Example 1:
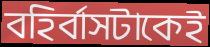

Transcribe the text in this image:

বহির্বাসটাকেই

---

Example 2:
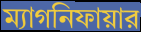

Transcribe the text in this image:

ম্যাগনিফায়ার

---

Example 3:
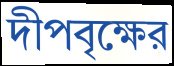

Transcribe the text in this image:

দীপবৃক্ষের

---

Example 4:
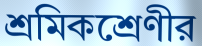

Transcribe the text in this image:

শ্রমিকশ্রেণীর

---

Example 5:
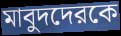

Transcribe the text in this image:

মাবুদদেরকে